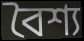
বৈশ্য